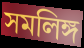
সমলিঙ্গ